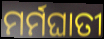
ମର୍ମଘାତୀ